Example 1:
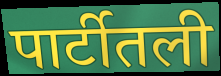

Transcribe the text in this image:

पार्टीतली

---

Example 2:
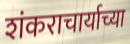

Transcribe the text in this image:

शंकराचार्याच्या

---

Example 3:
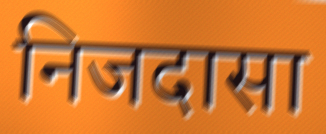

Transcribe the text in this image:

निजदासा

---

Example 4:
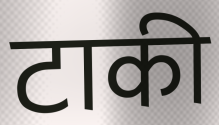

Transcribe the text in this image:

टाकी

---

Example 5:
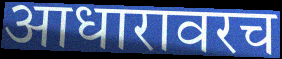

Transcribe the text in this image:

आधारावरच